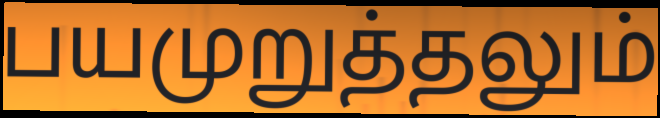
பயமுறுத்தலும்